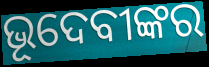
ଭୂଦେବୀଙ୍କର